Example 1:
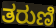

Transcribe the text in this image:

ತರುಣಿ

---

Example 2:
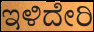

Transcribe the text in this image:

ಇಳಿದೇರಿ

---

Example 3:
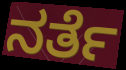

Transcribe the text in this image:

ನರ್ತೆ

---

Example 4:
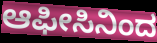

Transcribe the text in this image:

ಆಫೀಸಿನಿಂದ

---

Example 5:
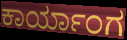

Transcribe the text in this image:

ಕಾರ್ಯಾಂಗ